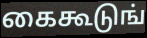
கைகூடுங்